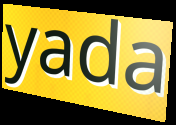
yada